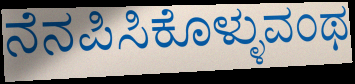
ನೆನಪಿಸಿಕೊಳ್ಳುವಂಥ